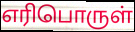
எரிபொருள்